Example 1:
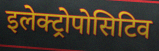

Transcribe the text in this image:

इलेक्ट्रोपोसिटिव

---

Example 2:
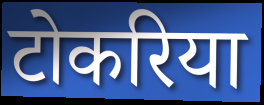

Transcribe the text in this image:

टोकरिया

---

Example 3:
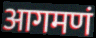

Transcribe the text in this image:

आगमणं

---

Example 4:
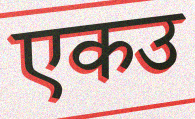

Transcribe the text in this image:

एकउ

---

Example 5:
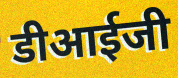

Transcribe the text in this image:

डीआईजी